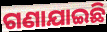
ଗଣାଯାଇଛି